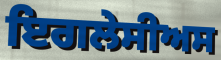
ਇਗਲੇਸੀਅਸ